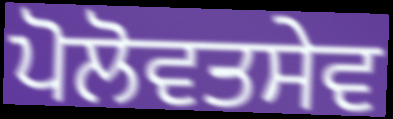
ਪੋਲੋਵਤਸੇਵ